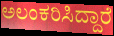
ಅಲಂಕರಿಸಿದ್ದಾರೆ